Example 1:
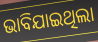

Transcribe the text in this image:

ଭାବିଯାଇଥିଲା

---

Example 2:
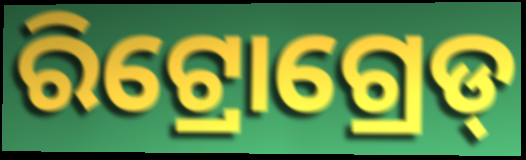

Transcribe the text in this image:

ରିଟ୍ରୋଗ୍ରେଡ୍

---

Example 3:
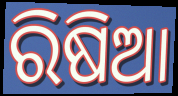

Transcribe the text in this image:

ରିଷିଆ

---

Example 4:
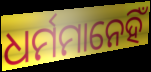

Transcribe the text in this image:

ଧର୍ମମାନେହିଁ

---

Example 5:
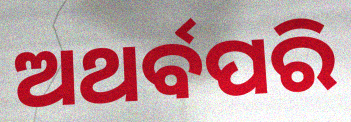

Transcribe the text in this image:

ଅଥର୍ବପରି